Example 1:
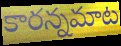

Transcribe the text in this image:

కారన్నమాట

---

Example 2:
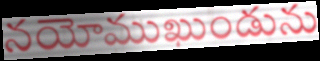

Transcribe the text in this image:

నయోముఖుండును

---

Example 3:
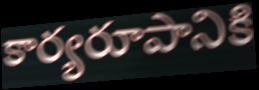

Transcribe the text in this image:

కార్యరూపానికి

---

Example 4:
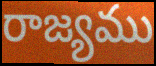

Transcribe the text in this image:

రాజ్యము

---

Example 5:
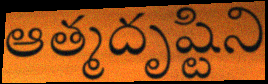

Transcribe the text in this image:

ఆత్మదృష్టిని